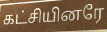
கட்சியினரே